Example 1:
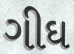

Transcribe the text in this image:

ગીઘ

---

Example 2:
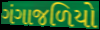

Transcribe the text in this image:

ગંગાજળિયો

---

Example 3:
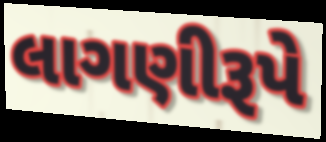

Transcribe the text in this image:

લાગણીરૂપે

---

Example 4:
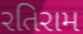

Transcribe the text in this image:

રતિરામ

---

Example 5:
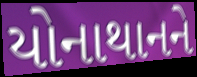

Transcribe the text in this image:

યોનાથાનને